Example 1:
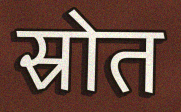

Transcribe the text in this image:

स्रोत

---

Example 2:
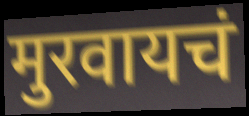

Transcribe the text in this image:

मुरवायचं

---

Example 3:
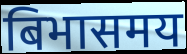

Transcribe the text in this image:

बिभासमय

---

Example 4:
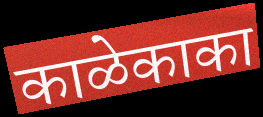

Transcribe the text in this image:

काळेकाका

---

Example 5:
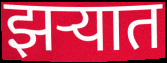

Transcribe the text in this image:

झर्‍यात